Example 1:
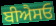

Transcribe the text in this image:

ਬੀਐਸਓ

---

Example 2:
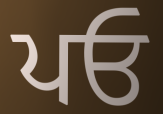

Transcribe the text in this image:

ਪਓ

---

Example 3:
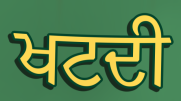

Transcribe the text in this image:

ਖਟਦੀ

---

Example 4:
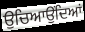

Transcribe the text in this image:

ਉਚਿਆਉਂਦਿਆਂ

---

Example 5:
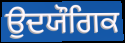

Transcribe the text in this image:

ਉਦਯੌਗਿਕ